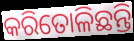
କରିତୋଳିଛନ୍ତି